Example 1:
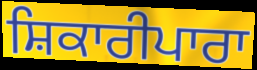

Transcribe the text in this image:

ਸ਼ਿਕਾਰੀਪਾਰਾ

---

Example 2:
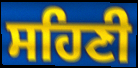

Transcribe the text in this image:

ਸਹਿਣੀ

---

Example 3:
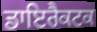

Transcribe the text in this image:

ਡਾਇਰੈਕਟਕ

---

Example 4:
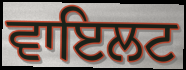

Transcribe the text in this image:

ਵਾਇਲਟ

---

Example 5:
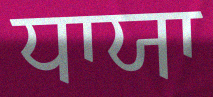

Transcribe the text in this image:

ਧਾਯਾ